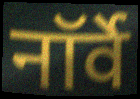
नॉर्वे